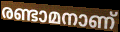
രണ്ടാമനാണ്